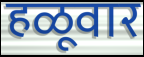
हळूवार